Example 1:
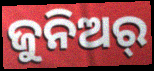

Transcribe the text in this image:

ଜୁନିଅର୍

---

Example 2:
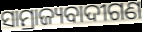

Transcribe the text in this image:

ସାମ୍ରାଜ୍ୟବାଦୀଗଣ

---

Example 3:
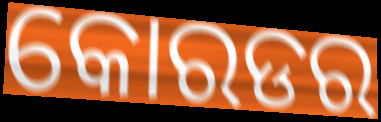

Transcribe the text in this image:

କୋରଡର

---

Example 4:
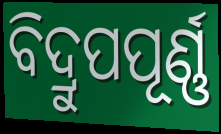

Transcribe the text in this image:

ବିଦ୍ରୁପପୂର୍ଣ୍ଣ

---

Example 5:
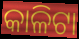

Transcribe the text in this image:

କାଳିଟା